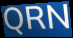
QRN